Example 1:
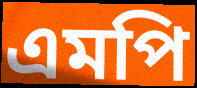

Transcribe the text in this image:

এমপি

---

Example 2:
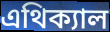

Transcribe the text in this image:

এথিক্যাল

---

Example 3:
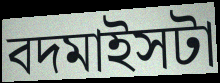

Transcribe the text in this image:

বদমাইসটা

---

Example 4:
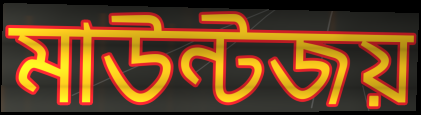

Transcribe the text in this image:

মাউন্টজয়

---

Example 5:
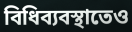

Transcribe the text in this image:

বিধিব্যবস্থাতেও